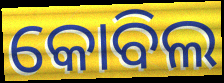
କୋବିଲ